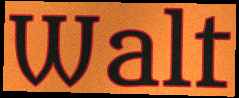
Walt